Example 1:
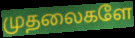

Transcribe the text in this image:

முதலைகளே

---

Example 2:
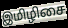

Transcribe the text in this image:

இமிழிசை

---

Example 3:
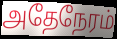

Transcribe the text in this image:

அதேநேரம்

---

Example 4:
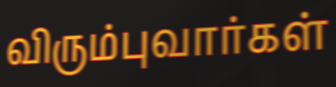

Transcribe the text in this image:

விரும்புவார்கள்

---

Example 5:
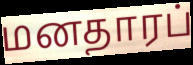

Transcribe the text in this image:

மனதாரப்